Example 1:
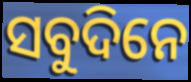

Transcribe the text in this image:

ସବୁଦିନେ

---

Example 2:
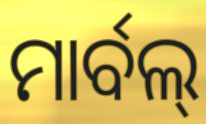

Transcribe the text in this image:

ମାର୍ବଲ୍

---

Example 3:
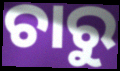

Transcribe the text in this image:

ଚାରୁ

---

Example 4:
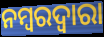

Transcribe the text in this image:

ନମ୍ବରଦ୍ୱାରା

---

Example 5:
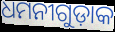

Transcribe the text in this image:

ଧମନୀଗୁଡ଼ାକ